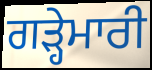
ਗੜ੍ਹੇਮਾਰੀ